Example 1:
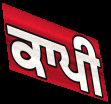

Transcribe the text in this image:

ਕਾਪੀ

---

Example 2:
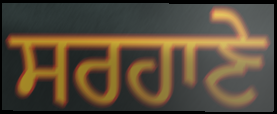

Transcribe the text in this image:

ਸਰਹਾਣੇ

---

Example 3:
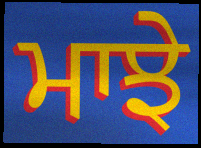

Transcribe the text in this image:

ਮਾਝੇ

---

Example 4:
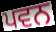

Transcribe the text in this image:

ਪਵਨ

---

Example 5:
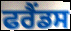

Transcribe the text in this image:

ਫਰੈਂਡਸ